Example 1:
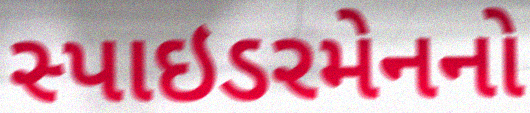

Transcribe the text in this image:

સ્પાઇડરમેનનો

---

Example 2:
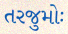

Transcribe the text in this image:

તરજુમોઃ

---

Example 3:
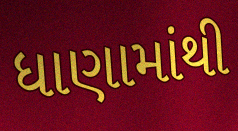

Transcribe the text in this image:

ધાણામાંથી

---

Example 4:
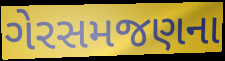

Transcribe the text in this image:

ગેરસમજણના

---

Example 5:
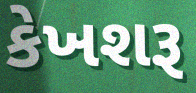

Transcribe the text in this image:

કેખશરૂ